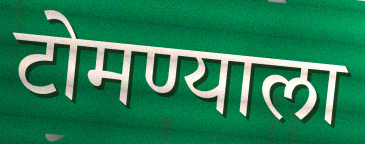
टोमण्याला